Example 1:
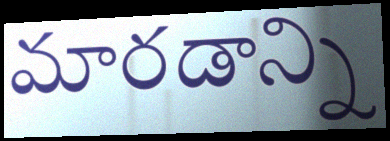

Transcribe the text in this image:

మారడాన్ని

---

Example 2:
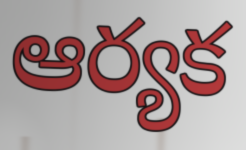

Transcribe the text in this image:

ఆర్యక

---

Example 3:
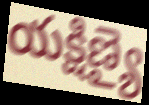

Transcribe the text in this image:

యక్షిణ్యై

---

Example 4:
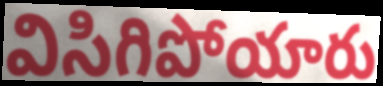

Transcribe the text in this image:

విసిగిపోయారు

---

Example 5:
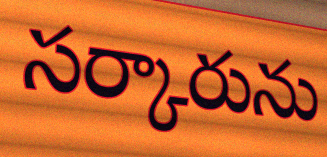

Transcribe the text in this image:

సర్కారును